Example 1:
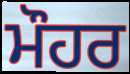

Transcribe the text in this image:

ਮੌਹਰ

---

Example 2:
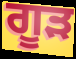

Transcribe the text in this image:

ਗੂੜ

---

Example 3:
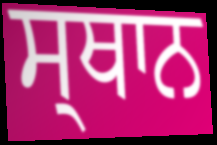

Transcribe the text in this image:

ਸ੍ਥਾਨ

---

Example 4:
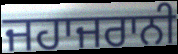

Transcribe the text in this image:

ਜਹਾਜਰਾਨੀ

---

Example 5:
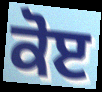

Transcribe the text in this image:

ਕੋੲ